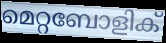
മെറ്റബോളിക്